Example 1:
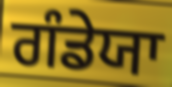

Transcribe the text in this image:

ਗੰਡੇਯਾ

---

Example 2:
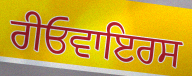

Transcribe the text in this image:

ਰੀਓਵਾਇਰਸ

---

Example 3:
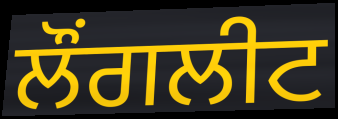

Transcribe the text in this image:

ਲੌਂਗਲੀਟ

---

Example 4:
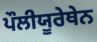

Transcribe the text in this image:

ਪੌਲੀਯੂਰੇਥੇਨ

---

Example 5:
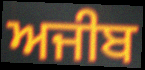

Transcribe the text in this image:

ਅਜੀਬ